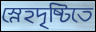
স্নেহদৃষ্টিতে